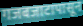
गजबजाटापासून